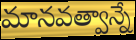
మానవత్వాన్నే